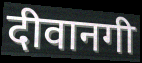
दीवानगी